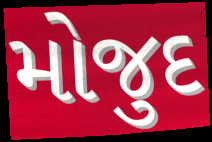
મોજુદ